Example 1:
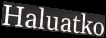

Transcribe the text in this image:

Haluatko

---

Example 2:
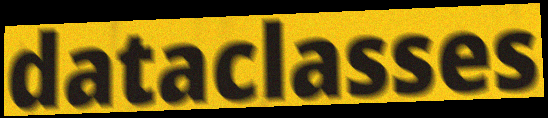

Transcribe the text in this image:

dataclasses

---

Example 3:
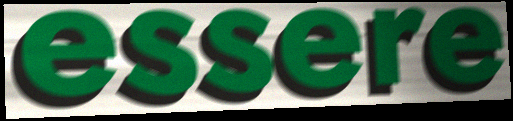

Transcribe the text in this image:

essere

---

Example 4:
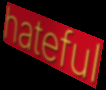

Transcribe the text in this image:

hateful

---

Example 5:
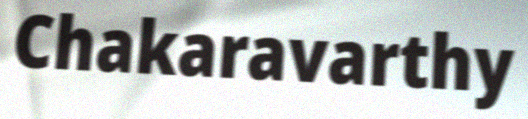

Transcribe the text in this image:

Chakaravarthy